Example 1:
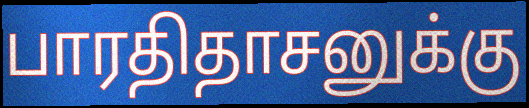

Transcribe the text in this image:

பாரதிதாசனுக்கு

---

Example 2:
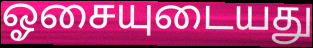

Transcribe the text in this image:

ஓசையுடையது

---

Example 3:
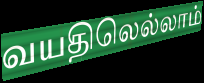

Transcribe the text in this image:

வயதிலெல்லாம்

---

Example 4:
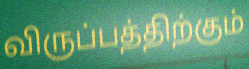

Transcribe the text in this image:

விருப்பத்திற்கும்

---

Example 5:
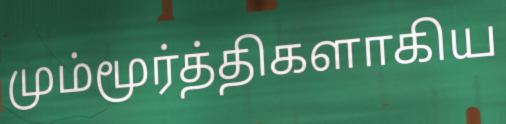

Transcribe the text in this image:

மும்மூர்த்திகளாகிய